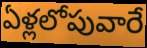
ఏళ్లలోపువారే